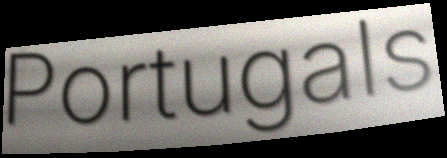
Portugals